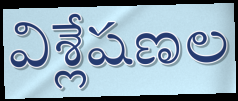
విశ్లేషణల